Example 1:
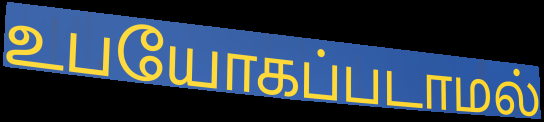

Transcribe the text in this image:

உபயோகப்படாமல்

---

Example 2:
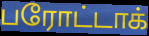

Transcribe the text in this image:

பரோட்டாக்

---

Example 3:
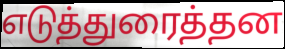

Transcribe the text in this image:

எடுத்துரைத்தன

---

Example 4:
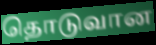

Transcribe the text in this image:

தொடுவான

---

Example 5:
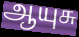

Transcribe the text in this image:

ஆயுசு